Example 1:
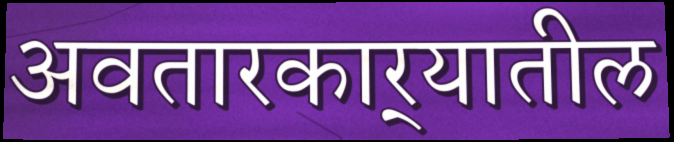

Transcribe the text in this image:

अवतारकार्यातील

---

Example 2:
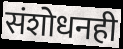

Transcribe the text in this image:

संशोधनही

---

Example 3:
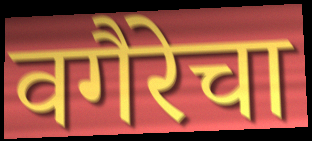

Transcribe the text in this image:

वगैरेचा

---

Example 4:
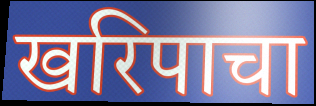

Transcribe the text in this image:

खरिपाचा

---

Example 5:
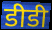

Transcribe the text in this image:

डीडी